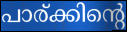
പാര്ക്കിന്റെ